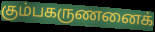
கும்பகருணனைக்